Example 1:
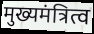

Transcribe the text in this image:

मुख्यमंत्रित्व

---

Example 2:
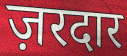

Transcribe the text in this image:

ज़रदार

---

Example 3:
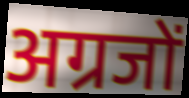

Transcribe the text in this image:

अग्रजों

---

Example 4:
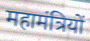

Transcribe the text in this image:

महामंत्रियों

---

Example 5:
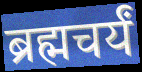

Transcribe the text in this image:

ब्रह्मचर्यं